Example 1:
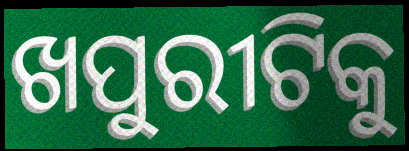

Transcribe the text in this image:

ଖପୁରୀଟିକୁ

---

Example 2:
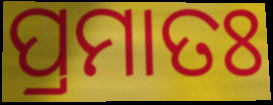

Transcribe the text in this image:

ପ୍ରମାତଃ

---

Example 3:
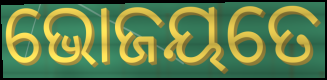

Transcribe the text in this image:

ଭୋଜୟତେ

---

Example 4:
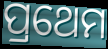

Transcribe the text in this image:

ପ୍ରଥେମ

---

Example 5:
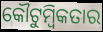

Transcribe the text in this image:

କୌଟୁମ୍ବିକତାର